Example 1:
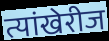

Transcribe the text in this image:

त्यांखेरीज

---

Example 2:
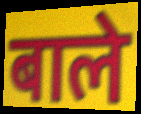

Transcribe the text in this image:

बाले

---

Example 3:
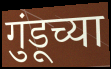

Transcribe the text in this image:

गुंडूच्या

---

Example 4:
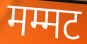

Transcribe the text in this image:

मम्मट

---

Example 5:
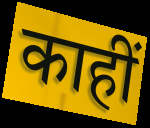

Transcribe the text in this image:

काहीं